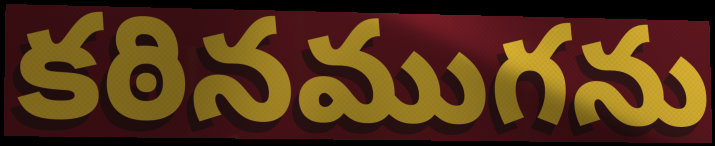
కఠినముగను